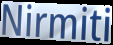
Nirmiti